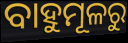
ବାହୁମୂଳରୁ